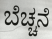
ಬೆಚ್ಚನೆ